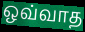
ஒவ்வாத